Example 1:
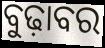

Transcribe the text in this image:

ବୁଢ଼ାବର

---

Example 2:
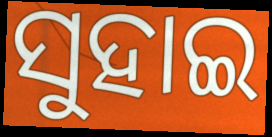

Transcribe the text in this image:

ସୁହାଇ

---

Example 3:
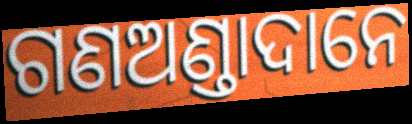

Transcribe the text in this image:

ଗଣଅଣ୍ଡାଦାନେ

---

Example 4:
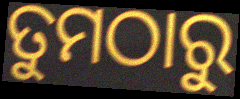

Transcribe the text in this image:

ତୁମଠାରୁ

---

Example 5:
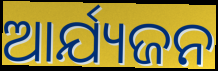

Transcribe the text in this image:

ଆର୍ଯ୍ୟଜନ